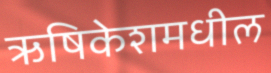
ऋषिकेशमधील